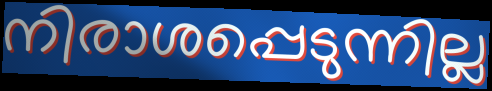
നിരാശപ്പെടുന്നില്ല